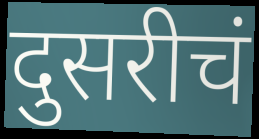
दुसरीचं